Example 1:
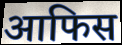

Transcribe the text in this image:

आफिस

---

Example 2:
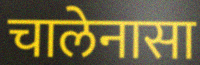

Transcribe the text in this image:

चालेनासा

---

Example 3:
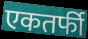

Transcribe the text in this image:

एकतर्फी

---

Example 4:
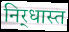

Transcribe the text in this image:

निर्धास्त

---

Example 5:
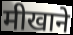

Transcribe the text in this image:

मीखाने